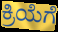
ಕ್ರಿಯೆಗೆ